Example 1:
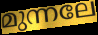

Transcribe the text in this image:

മുന്നലേ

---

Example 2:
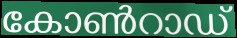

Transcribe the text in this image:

കോൺറാഡ്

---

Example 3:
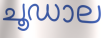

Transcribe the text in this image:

ചൂഡാല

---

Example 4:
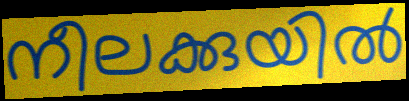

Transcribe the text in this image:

നീലക്കുയിൽ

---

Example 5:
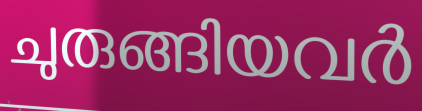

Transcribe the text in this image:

ചുരുങ്ങിയവർ